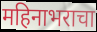
महिनाभराचा